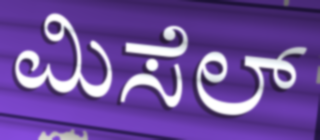
ಮಿಸೆಲ್